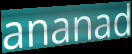
ananad